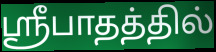
ஸ்ரீபாதத்தில்